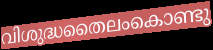
വിശുദ്ധതൈലംകൊണ്ടു